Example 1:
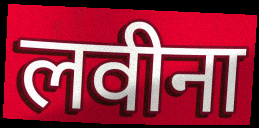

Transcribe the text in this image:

लवीना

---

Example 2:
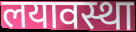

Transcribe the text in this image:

लयावस्था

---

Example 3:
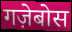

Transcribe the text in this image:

गज़ेबोस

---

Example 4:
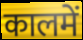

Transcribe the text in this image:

कालमें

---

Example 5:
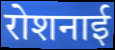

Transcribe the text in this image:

रोशनाई